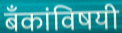
बँकांविषयी